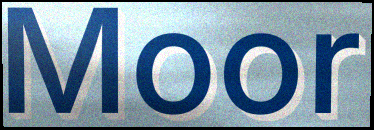
Moor